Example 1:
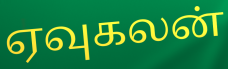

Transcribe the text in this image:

ஏவுகலன்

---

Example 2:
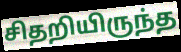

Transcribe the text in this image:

சிதறியிருந்த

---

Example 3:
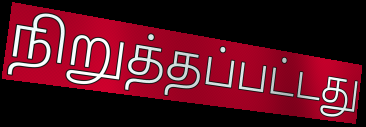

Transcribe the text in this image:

நிறுத்தப்பட்டது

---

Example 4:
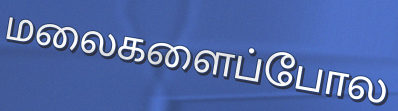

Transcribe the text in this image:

மலைகளைப்போல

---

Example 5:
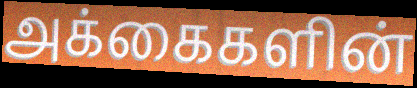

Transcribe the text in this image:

அக்கைகளின்